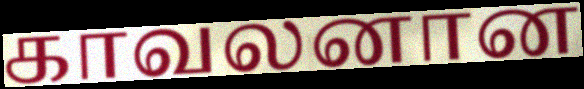
காவலனான